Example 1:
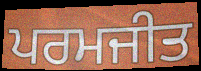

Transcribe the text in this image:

ਪਰਮਜੀਤ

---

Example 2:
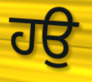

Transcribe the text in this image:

ਹਉ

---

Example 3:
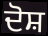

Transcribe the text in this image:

ਦੋਸ਼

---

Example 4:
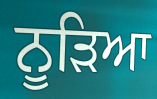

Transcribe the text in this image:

ਨੂੜਿਆ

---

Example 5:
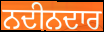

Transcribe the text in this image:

ਨਦੀਨਦਾਰ